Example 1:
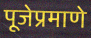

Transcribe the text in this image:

पूजेप्रमाणे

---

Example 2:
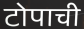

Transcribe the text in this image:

टोपाची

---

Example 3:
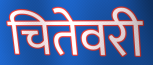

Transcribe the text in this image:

चितेवरी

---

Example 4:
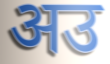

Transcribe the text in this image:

अउ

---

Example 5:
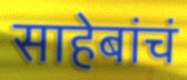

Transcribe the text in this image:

साहेबांचं